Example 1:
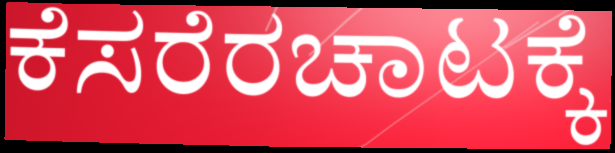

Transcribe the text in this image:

ಕೆಸರೆರಚಾಟಕ್ಕೆ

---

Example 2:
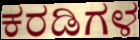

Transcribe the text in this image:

ಕರಡಿಗಳ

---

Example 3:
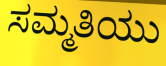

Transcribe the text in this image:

ಸಮ್ಮತಿಯು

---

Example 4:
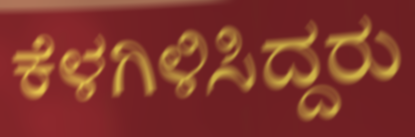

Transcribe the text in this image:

ಕೆಳಗಿಳಿಸಿದ್ದರು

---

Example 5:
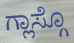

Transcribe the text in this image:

ಗ್ಲಾಸ್ಗೊ